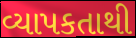
વ્યાપકતાથી